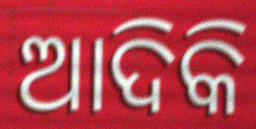
ଆଦିକି